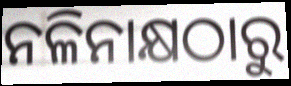
ନଳିନାକ୍ଷଠାରୁ